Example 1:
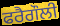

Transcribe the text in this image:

ਫਰੈਗੌਲੀ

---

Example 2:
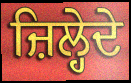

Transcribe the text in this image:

ਜ਼ਿਲ੍ਹੇਦੇ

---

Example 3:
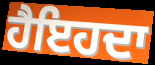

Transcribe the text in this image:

ਹੈਇਹਦਾ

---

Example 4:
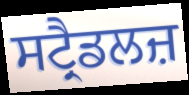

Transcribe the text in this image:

ਸਟ੍ਰੈਡਲਜ਼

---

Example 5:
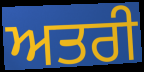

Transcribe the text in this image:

ਅਤਰੀ